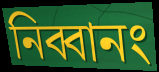
নিব্বানং